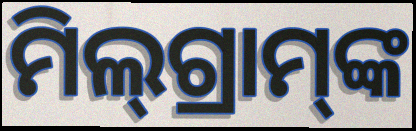
ମିଲ୍‌ଗ୍ରାମ୍‌ଙ୍କ